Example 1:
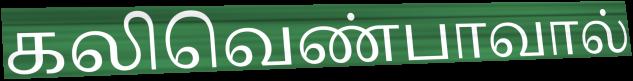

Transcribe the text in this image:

கலிவெண்பாவால்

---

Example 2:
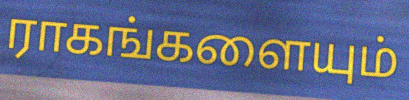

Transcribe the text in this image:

ராகங்களையும்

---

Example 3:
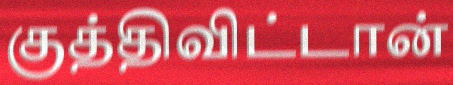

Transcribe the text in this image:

குத்திவிட்டான்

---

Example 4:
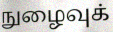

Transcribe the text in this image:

நுழைவுக்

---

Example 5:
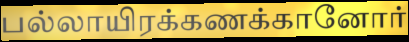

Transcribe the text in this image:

பல்லாயிரக்கணக்கானோர்